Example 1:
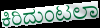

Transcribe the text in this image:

ಕಿರಿದುಂಟಲಾ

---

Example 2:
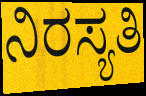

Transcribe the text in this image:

ನಿರಸ್ಯತಿ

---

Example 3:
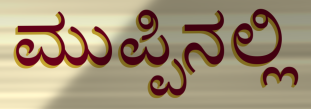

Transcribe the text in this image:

ಮುಪ್ಪಿನಲ್ಲಿ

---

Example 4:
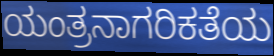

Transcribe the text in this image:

ಯಂತ್ರನಾಗರಿಕತೆಯ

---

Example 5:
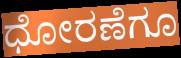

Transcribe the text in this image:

ಧೋರಣೆಗೂ